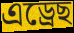
এড্ৰেছ